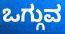
ಒಗ್ಗುವ